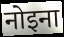
नोइना